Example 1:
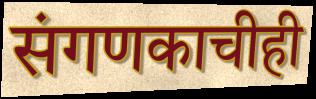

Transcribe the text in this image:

संगणकाचीही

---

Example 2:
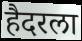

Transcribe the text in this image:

हैदरला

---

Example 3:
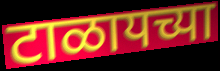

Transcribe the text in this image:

टाळायच्या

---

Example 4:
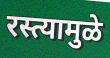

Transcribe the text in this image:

रस्त्यामुळे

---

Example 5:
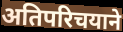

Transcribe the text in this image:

अतिपरिचयाने